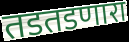
तडतडणारा